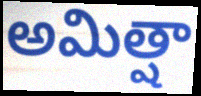
అమిత్షా